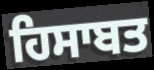
ਹਿਸਾਬਤ